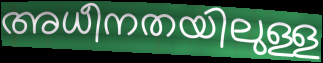
അധീനതയിലുള്ള